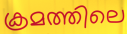
ക്രമത്തിലെ